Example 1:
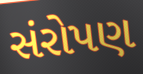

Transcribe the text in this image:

સંરોપણ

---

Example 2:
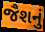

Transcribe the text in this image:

જૈશનું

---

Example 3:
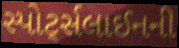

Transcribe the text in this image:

સ્પોર્ટ્સલાઈનની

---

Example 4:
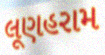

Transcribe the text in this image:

લૂણહરામ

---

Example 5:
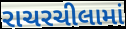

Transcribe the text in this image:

રાચરચીલામાં